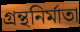
গ্রন্থনির্মাতা